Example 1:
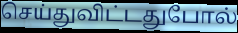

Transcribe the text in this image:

செய்துவிட்டதுபோல்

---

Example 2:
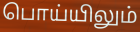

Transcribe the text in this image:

பொய்யிலும்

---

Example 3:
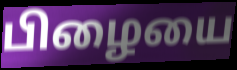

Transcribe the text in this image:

பிழையை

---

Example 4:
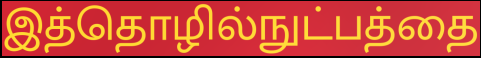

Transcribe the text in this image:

இத்தொழில்நுட்பத்தை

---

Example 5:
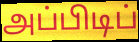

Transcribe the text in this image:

அப்பிடிப்